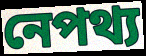
নেপথ্য